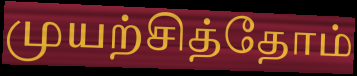
முயற்சித்தோம்